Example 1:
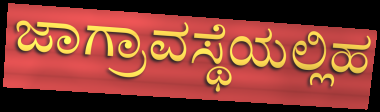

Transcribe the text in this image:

ಜಾಗ್ರಾವಸ್ಥೆಯಲ್ಲಿಹ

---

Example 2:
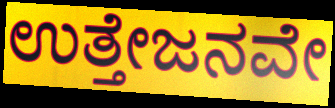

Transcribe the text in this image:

ಉತ್ತೇಜನವೇ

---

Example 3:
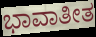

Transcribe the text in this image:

ಭಾವಾತೀತ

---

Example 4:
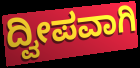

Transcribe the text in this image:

ದ್ವೀಪವಾಗಿ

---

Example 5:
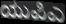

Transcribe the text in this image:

ಯುಪಿಎ